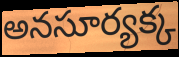
అనసూర్యక్క